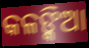
କଳଙ୍କିଆ